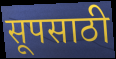
सूपसाठी